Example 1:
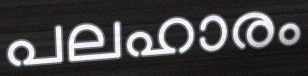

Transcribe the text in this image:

പലഹാരം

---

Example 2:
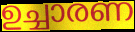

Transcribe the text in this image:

ഉച്ചാരണ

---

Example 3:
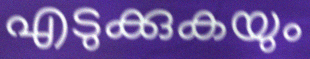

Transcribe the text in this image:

എടുക്കുകയും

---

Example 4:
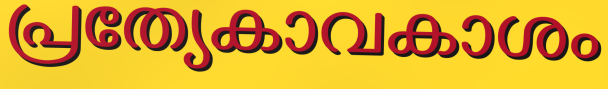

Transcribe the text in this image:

പ്രത്യേകാവകാശം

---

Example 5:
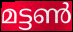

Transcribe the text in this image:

മട്ടൺ